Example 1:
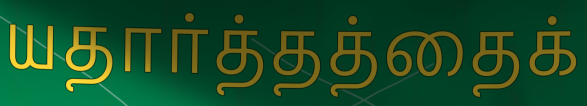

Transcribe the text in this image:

யதார்த்தத்தைக்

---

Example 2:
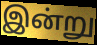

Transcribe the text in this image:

இன்று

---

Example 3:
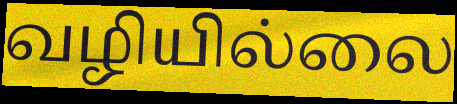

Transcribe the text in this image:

வழியில்லை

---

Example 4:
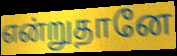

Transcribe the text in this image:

என்றுதானே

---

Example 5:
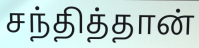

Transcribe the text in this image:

சந்தித்தான்